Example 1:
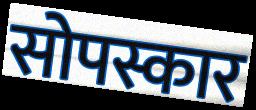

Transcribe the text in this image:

सोपस्कार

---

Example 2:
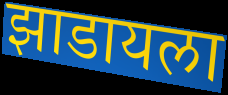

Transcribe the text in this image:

झाडायला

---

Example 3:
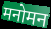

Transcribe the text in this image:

मनोमन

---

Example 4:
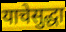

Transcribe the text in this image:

याचेसुद्धा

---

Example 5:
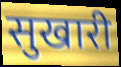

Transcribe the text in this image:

सुखारी